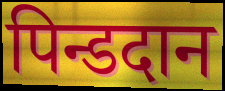
पिन्डदान